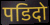
पडिदो